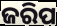
ଜରିପ